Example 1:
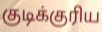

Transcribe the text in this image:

குடிக்குரிய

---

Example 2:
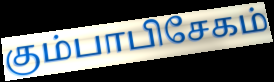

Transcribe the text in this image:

கும்பாபிசேகம்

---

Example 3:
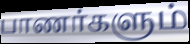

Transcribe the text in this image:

பாணர்களும்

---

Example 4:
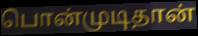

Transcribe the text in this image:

பொன்முடிதான்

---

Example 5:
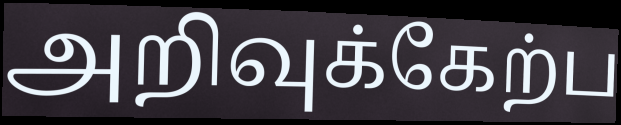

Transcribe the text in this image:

அறிவுக்கேற்ப